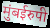
मुंबईरुपी